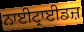
ਨਾਈਟ੍ਰਾਈਡਜ਼